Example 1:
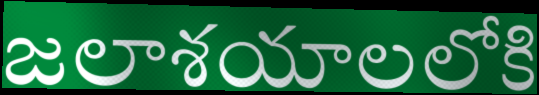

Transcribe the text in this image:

జలాశయాలలోకి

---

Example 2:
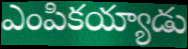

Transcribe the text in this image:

ఎంపికయ్యాడు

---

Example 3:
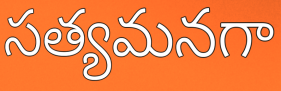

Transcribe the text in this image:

సత్యమనగా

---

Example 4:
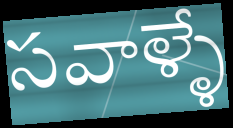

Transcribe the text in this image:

సవాళ్ళే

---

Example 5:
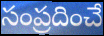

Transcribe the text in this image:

సంప్రదించే